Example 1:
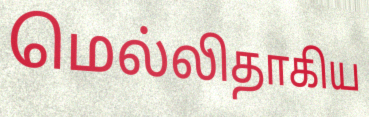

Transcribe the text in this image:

மெல்லிதாகிய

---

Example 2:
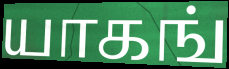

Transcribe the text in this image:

யாகங்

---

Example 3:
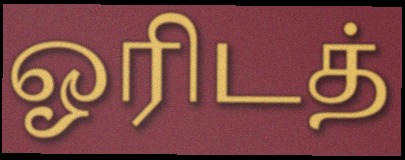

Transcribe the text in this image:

ஓரிடத்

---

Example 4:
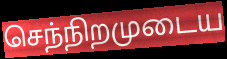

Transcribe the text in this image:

செந்நிறமுடைய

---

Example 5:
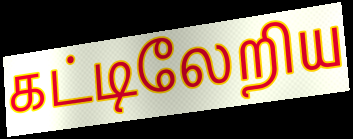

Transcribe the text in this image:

கட்டிலேறிய